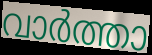
വാർത്താ